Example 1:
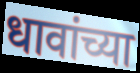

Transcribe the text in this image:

धावांच्या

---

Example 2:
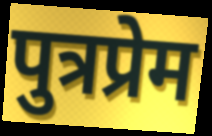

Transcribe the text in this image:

पुत्रप्रेम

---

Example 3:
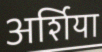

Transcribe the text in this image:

अर्शिया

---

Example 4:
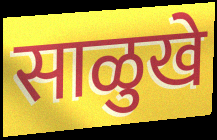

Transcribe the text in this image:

साळुखे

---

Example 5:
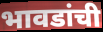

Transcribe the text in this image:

भावडांची